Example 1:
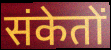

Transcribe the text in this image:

संकेतों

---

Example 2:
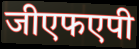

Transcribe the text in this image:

जीएफएपी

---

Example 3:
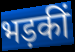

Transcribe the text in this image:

भड़कीं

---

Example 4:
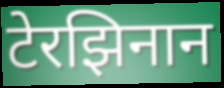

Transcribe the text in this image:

टेरझिनान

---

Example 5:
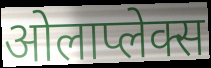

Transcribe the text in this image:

ओलाप्लेक्स